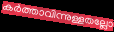
കർത്താവിന്നുള്ളതല്ലോ